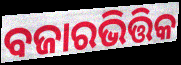
ବଜାରଭିତ୍ତିକ